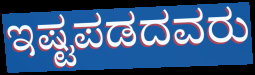
ಇಷ್ಟಪಡದವರು